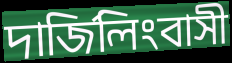
দার্জিলিংবাসী